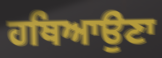
ਹਥਿਆਉਣਾ